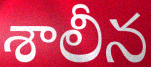
శాలీన